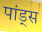
पांड्स